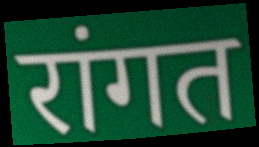
रांगत